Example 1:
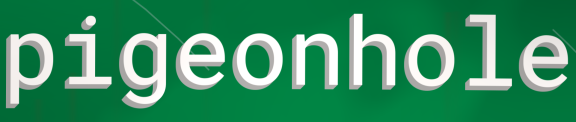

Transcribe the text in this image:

pigeonhole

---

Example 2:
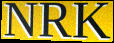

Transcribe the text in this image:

NRK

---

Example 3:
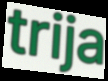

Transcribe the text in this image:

trija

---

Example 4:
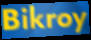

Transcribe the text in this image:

Bikroy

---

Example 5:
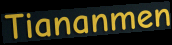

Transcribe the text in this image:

Tiananmen